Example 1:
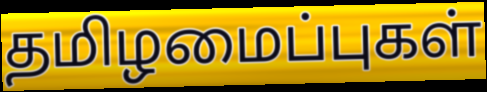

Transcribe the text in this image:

தமிழமைப்புகள்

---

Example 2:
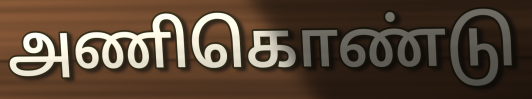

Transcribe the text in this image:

அணிகொண்டு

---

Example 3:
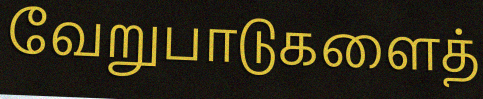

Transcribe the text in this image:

வேறுபாடுகளைத்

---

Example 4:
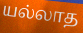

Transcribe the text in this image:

யல்லாத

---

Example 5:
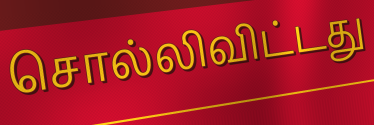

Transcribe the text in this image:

சொல்லிவிட்டது